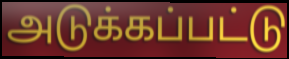
அடுக்கப்பட்டு